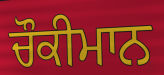
ਚੌਕੀਮਾਨ